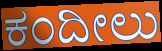
ಕಂದೀಲು